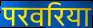
परवरिया